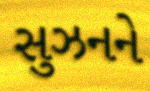
સુઝનને